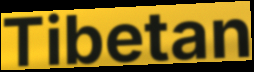
Tibetan